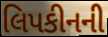
લિપકીનની